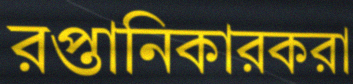
রপ্তানিকারকরা